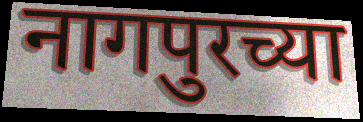
नागपुरच्या